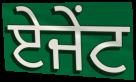
ਏਜੇਂਟ